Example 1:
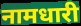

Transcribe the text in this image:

नामधारी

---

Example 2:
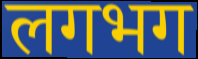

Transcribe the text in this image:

लगभग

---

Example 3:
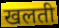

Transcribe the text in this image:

खलती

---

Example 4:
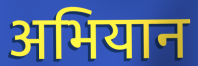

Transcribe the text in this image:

अभियान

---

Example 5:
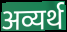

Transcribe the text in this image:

अव्यर्थ